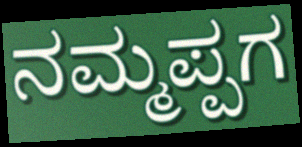
ನಮ್ಮಪ್ಪಗ